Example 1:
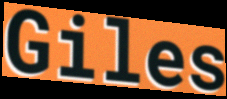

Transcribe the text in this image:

Giles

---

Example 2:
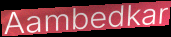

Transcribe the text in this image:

Aambedkar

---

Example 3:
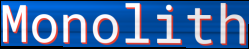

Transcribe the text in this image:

Monolith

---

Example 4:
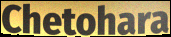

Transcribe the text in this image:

Chetohara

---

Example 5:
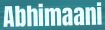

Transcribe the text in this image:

Abhimaani